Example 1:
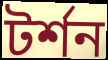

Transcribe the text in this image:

টর্শন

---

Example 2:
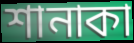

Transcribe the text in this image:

শানাকা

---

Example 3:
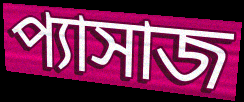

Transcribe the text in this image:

প্যাসাজ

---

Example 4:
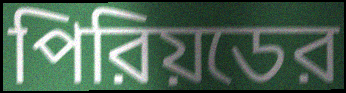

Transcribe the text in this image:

পিরিয়ডের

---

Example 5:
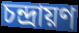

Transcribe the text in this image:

চন্দ্রায়ণ